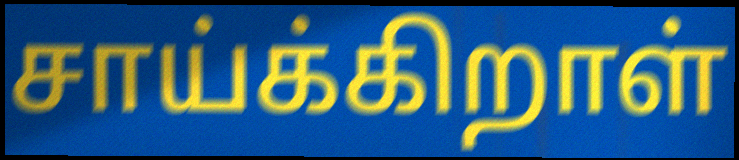
சாய்க்கிறாள்